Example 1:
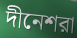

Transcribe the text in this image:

দীনেশরা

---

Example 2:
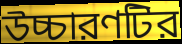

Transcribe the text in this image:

উচ্চারণটির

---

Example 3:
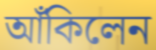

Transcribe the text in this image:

আঁকিলেন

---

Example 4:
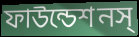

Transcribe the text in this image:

ফাউন্ডেশনস্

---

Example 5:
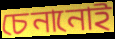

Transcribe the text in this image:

চেনানোই